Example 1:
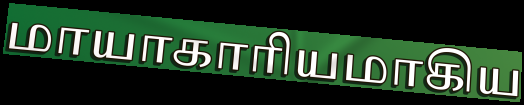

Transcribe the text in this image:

மாயாகாரியமாகிய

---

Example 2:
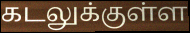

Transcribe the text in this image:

கடலுக்குள்ள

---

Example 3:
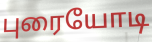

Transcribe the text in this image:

புரையோடி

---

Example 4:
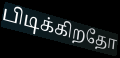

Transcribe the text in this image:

பிடிக்கிறதோ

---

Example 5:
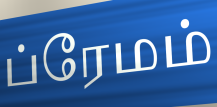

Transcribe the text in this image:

ப்ரேமம்